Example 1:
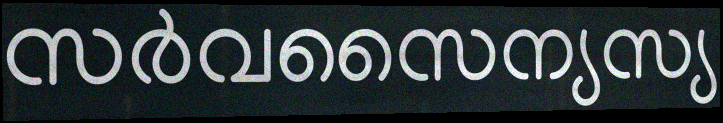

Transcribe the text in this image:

സർവസൈന്യസ്യ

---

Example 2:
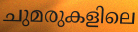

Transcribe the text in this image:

ചുമരുകളിലെ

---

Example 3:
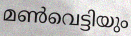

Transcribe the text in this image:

മൺവെട്ടിയും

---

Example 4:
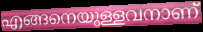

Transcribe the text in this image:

എങ്ങനെയുള്ളവനാണ്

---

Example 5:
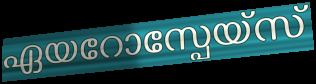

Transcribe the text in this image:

ഏയറോസ്പേയ്സ്